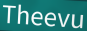
Theevu